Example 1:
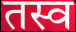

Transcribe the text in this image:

तस्व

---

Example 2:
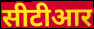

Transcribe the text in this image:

सीटीआर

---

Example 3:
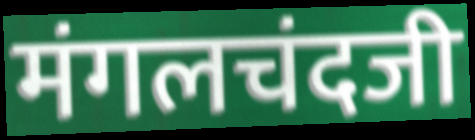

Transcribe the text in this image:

मंगलचंदजी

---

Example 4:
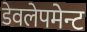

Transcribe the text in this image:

डेवलेपमेन्ट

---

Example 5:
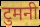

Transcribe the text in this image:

टुमनी